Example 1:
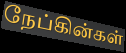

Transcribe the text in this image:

நேப்கின்கள்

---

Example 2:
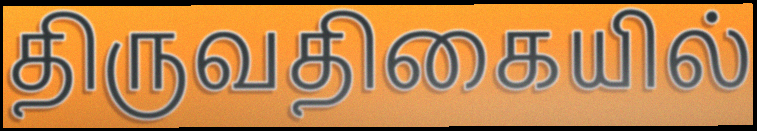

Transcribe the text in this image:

திருவதிகையில்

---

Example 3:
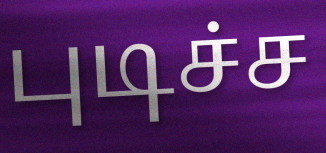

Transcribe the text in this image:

புடிச்ச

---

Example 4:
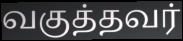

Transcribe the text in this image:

வகுத்தவர்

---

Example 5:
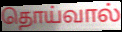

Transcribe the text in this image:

தொய்வால்